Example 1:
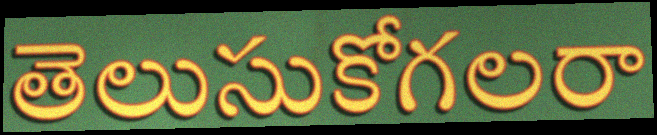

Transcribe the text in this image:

తెలుసుకోగలరా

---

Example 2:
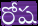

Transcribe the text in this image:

రోష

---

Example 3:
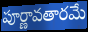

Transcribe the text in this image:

పూర్ణావతారమే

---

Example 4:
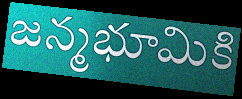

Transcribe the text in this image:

జన్మభూమికి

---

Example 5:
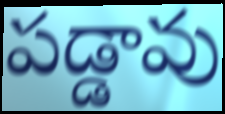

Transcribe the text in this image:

పడ్డావు